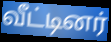
வீட்டினர்